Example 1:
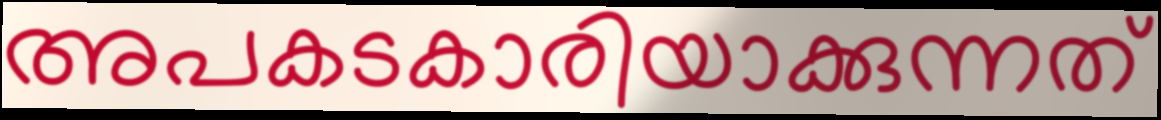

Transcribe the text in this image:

അപകടകാരിയാക്കുന്നത്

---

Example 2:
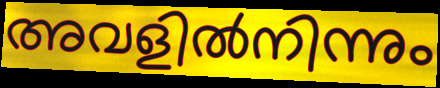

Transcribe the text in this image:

അവളിൽനിന്നും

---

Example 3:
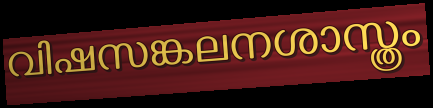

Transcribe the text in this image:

വിഷസങ്കലനശാസ്ത്രം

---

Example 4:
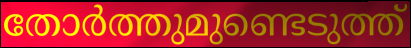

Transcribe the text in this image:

തോർത്തുമുണ്ടെടുത്ത്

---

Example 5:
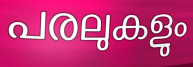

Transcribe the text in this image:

പരലുകളും